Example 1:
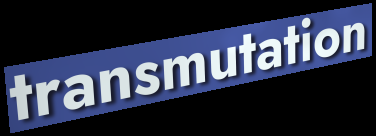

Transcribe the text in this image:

transmutation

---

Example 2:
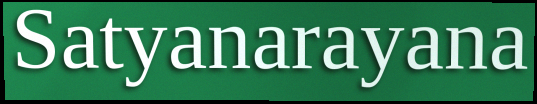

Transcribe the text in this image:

Satyanarayana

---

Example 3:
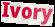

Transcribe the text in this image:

Ivory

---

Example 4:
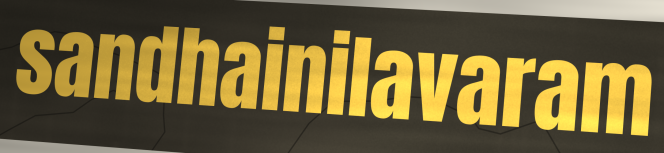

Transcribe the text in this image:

sandhainilavaram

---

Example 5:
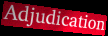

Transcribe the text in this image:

Adjudication